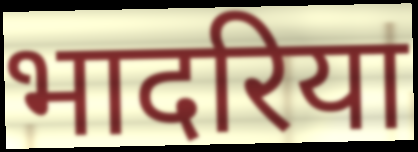
भादरिया